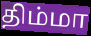
திம்மா